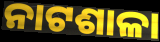
ନାଟଶାଳା